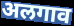
अलगाव